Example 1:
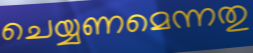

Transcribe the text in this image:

ചെയ്യണമെന്നതു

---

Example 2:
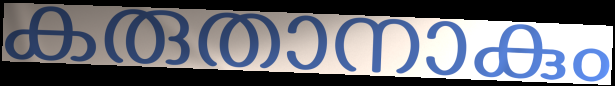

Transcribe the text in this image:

കരുതാനാകും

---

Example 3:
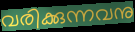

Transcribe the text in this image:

വരിക്കുന്നവനു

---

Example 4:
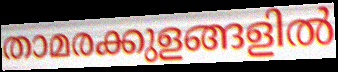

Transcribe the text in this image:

താമരക്കുളങ്ങളിൽ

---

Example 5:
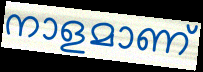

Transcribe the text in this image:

നാളമാണ്